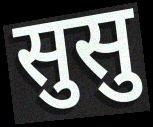
सुसु